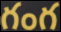
గంగ